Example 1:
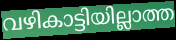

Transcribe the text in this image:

വഴികാട്ടിയില്ലാത്ത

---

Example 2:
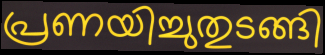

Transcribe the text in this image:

പ്രണയിച്ചുതുടങ്ങി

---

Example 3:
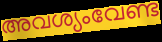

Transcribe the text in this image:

അവശ്യംവേണ്ട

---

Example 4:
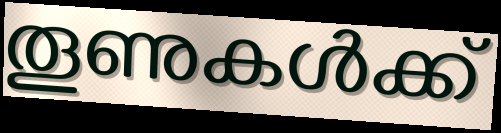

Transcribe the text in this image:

തൂണുകൾക്ക്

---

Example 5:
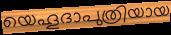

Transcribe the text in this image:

യെഹൂദാപുത്രിയായ